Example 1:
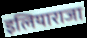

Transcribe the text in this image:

इलियाराजा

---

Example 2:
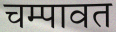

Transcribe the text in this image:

चम्पावत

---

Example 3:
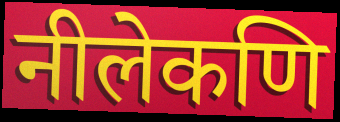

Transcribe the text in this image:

नीलेकणि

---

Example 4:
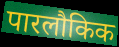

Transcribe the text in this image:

पारलौकिक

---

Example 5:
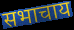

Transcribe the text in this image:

सभाचाय